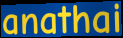
anathai